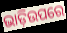
ଭାଡ଼ିଉପରେ